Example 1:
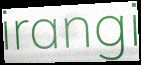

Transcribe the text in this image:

irangi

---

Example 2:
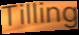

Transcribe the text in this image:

Tilling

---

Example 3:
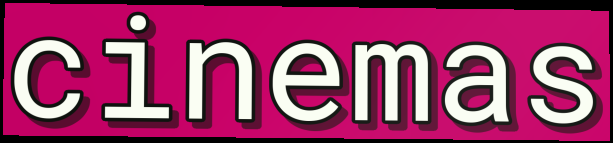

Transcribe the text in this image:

cinemas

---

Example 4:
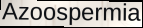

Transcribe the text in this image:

Azoospermia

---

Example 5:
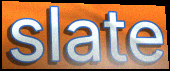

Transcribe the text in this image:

slate